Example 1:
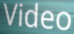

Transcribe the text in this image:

Video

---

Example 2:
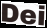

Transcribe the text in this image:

Dei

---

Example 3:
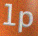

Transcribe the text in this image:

lp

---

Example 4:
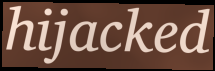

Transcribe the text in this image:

hijacked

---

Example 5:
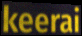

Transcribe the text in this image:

keerai